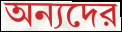
অন্যদের